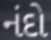
નંદો